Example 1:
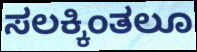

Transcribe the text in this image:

ಸಲಕ್ಕಿಂತಲೂ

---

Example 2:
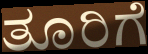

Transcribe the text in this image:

ತೂರಿಗೆ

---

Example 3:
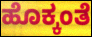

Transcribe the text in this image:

ಹೊಕ್ಕಂತೆ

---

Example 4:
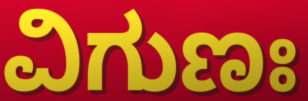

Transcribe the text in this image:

ವಿಗುಣಃ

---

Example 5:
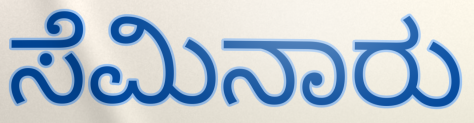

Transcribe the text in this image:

ಸೆಮಿನಾರು